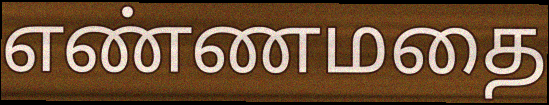
எண்ணமதை